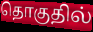
தொகுதில்